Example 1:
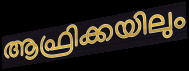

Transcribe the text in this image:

ആഫ്രിക്കയിലും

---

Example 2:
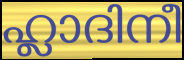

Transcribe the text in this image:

ഹ്ലാദിനീ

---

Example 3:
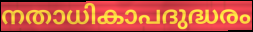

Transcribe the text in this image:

നതാധികാപദുദ്ധരം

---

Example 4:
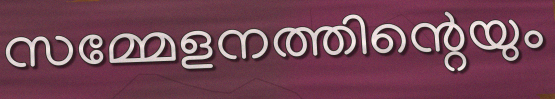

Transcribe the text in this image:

സമ്മേളനത്തിന്റെയും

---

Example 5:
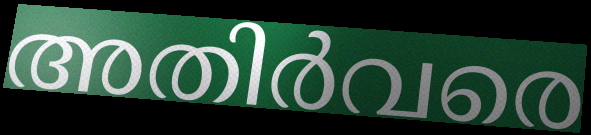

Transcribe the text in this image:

അതിർവരെ